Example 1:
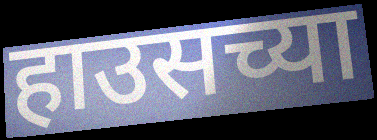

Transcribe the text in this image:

हाउसच्या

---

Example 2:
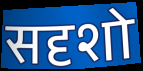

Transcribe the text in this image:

सदृशो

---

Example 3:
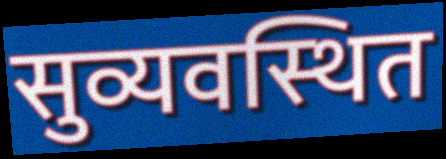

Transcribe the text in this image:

सुव्यवस्थित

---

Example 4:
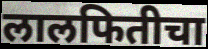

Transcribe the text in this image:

लालफितीचा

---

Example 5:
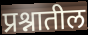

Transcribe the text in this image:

प्रश्नातील